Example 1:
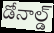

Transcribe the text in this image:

డోనాల్డ్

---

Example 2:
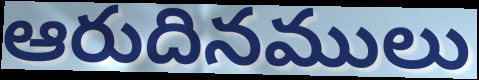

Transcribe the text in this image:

ఆరుదినములు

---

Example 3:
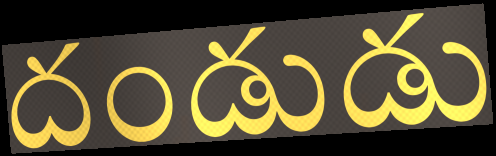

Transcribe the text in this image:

దండుడు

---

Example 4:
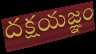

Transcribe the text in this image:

దక్షయజ్ఞం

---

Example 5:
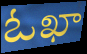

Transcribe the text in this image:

ఓఖా